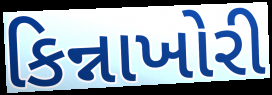
કિન્નાખોરી